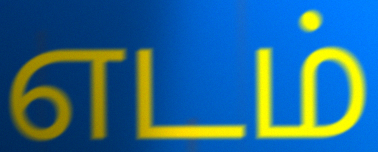
எடம்